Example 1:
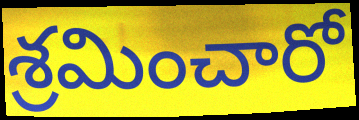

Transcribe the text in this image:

శ్రమించారో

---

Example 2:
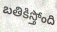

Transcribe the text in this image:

బతికిస్తోంది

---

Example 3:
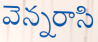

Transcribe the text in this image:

వెన్నరాసి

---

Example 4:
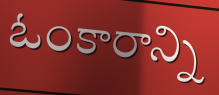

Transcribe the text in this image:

ఓంకారాన్ని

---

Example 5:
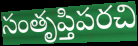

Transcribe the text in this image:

సంతృప్తిపరచి